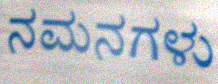
ನಮನಗಳು